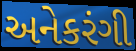
અનેકરંગી